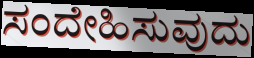
ಸಂದೇಹಿಸುವುದು